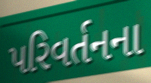
પરિવર્તનના